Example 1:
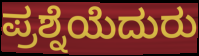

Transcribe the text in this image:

ಪ್ರಶ್ನೆಯೆದುರು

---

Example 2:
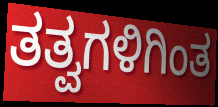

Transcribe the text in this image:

ತತ್ವಗಳಿಗಿಂತ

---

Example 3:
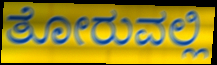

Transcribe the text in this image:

ತೋರುವಲ್ಲಿ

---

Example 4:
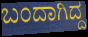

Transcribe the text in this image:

ಬಂದಾಗಿದ್ದ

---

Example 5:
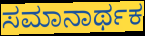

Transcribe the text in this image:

ಸಮಾನಾರ್ಥಕ